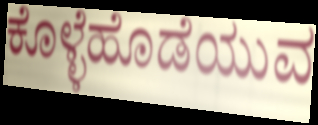
ಕೊಳ್ಳೆಹೊಡೆಯುವ